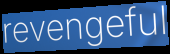
revengeful